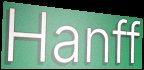
Hanff